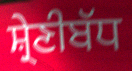
ਸ਼੍ਰੇਣੀਬੱਧ